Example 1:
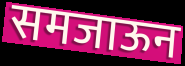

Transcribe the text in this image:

समजाऊन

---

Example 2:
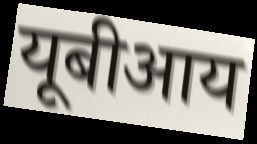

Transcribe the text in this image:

यूबीआय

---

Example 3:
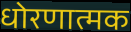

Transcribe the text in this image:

धोरणात्मक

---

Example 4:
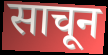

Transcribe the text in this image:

साचून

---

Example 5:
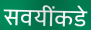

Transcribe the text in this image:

सवयींकडे